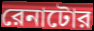
রেনাটোর